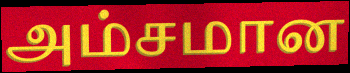
அம்சமான